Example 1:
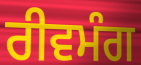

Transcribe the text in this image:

ਰੀਵਮੰਗ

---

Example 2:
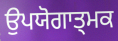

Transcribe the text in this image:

ਉਪਯੋਗਾਤ੍ਮਕ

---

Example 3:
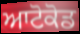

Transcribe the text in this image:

ਆਟੋਕੋਡ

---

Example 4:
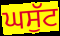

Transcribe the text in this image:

ਘਸੁੱਟ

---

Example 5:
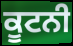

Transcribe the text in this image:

ਕੂਟਨੀ